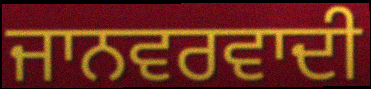
ਜਾਨਵਰਵਾਦੀ